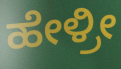
ಹೇಳ್ರೀ